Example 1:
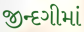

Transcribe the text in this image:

જીન્દગીમાં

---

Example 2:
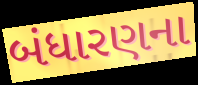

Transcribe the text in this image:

બંધારણના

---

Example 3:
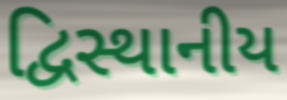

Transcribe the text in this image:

દ્વિસ્થાનીય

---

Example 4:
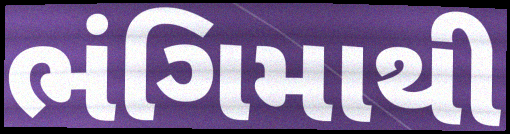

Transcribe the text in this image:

ભંગિમાથી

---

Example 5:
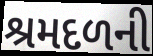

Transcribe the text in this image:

શ્રમદળની